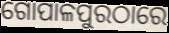
ଗୋପାଳପୁରଠାରେ